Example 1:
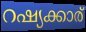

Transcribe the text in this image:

റഷ്യക്കാര്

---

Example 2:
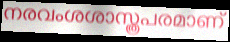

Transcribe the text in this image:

നരവംശശാസ്ത്രപരമാണ്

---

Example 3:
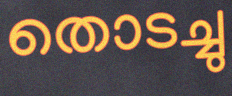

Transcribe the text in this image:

തൊടച്ചു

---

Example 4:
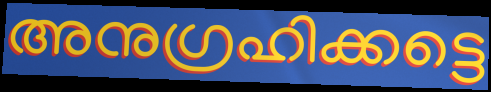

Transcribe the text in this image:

അനുഗ്രഹിക്കട്ടെ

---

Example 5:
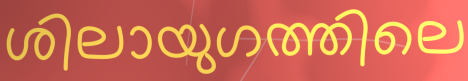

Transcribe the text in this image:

ശിലായുഗത്തിലെ